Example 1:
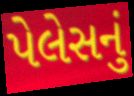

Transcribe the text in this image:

પેલેસનું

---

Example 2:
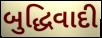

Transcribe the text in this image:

બુદ્ધિવાદી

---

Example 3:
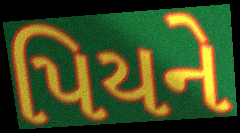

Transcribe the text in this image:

પિયને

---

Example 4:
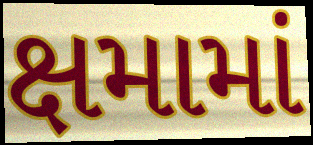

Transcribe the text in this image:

ક્ષમામાં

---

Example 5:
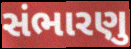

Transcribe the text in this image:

સંભારણુ